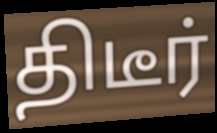
திடீர்